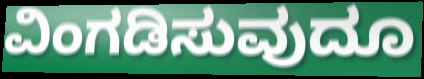
ವಿಂಗಡಿಸುವುದೂ